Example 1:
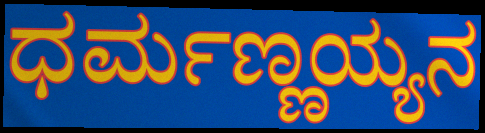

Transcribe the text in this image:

ಧರ್ಮಣ್ಣಯ್ಯನ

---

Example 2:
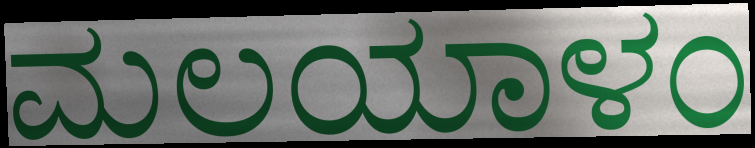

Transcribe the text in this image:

ಮಲಯಾಳಂ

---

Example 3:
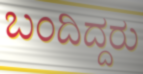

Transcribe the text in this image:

ಬಂದಿದ್ದರು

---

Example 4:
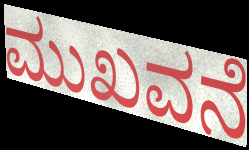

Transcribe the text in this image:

ಮುಖವನೆ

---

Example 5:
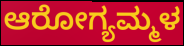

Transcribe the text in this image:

ಆರೋಗ್ಯಮ್ಮಳ